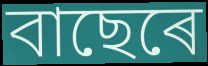
বাছেৰে